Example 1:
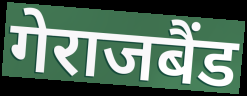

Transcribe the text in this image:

गेराजबैंड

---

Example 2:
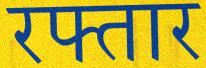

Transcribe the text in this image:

रफ्तार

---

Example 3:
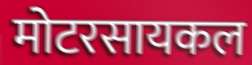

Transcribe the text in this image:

मोटरसायकल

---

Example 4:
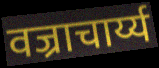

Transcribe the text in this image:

वज्राचार्य्य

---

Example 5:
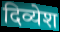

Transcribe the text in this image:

दिव्येश